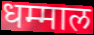
धम्माल